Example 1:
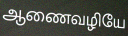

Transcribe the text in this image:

ஆணைவழியே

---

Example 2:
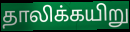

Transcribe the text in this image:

தாலிக்கயிறு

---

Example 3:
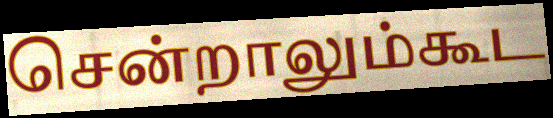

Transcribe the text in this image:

சென்றாலும்கூட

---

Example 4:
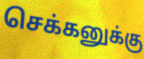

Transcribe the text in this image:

செக்கனுக்கு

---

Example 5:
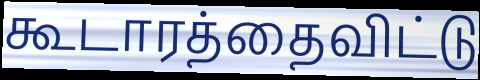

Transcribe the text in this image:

கூடாரத்தைவிட்டு